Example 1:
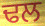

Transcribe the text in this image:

ਢਲ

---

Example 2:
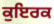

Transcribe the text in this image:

ਕੁਇਰਕ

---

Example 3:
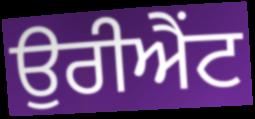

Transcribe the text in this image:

ਉਰੀਐਂਟ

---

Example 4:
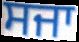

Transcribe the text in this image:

ਸਜਾ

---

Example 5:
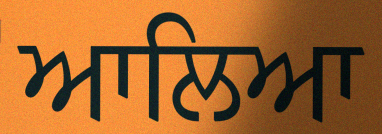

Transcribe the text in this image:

ਆਲਿਆ